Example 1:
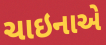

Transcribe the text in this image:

ચાઇનાએ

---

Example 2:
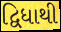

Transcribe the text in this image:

દ્વિધાથી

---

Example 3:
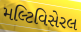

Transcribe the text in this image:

મલ્ટિવિસેરલ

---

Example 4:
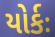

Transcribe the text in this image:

યોર્કઃ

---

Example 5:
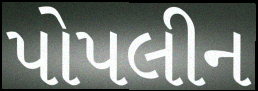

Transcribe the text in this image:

પોપલીન